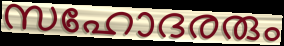
സഹോദരരും